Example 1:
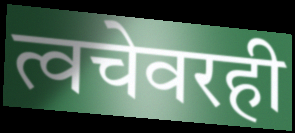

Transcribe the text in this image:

त्वचेवरही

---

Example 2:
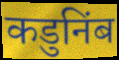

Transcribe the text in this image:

कडुनिंब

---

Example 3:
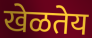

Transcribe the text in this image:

खेळतेय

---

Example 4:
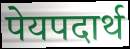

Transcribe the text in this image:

पेयपदार्थ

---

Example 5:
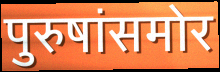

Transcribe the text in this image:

पुरुषांसमोर